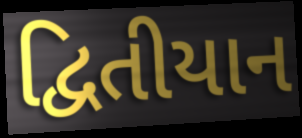
દ્વિતીયાન